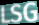
LSG